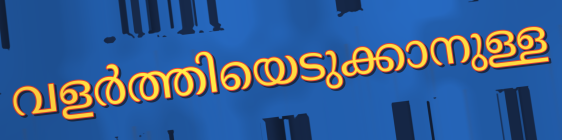
വളർത്തിയെടുക്കാനുള്ള